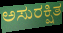
ಅಸುರಕ್ಷಿತ